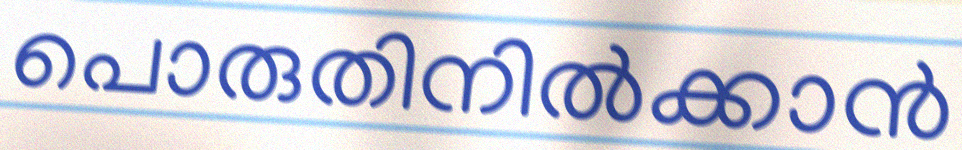
പൊരുതിനിൽക്കാൻ